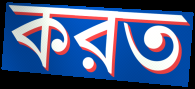
করত